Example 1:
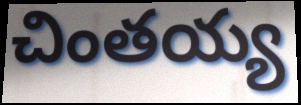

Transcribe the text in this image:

చింతయ్య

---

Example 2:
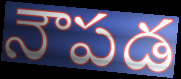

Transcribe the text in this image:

నౌపడ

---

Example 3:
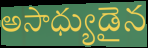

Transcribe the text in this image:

అసాధ్యుడైన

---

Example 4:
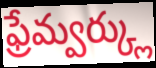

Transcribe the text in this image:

ఫ్రేమ్వర్క్లు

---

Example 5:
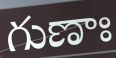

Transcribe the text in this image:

గుణాః